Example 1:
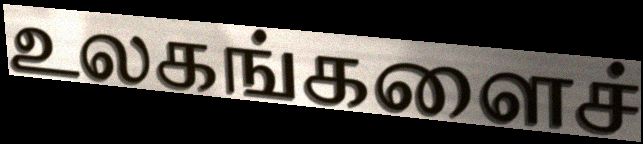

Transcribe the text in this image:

உலகங்களைச்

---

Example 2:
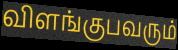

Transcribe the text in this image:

விளங்குபவரும்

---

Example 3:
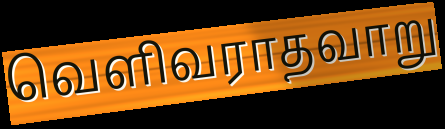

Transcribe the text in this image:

வெளிவராதவாறு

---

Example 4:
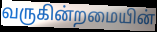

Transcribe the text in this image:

வருகின்றமையின்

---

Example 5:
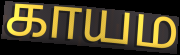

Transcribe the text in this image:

காயம